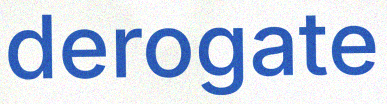
derogate